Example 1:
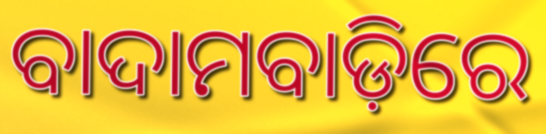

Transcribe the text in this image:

ବାଦାମବାଡ଼ିରେ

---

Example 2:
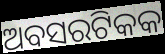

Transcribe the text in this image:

ଅବସରଟିକକ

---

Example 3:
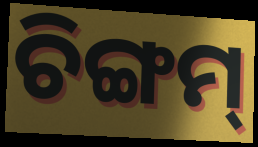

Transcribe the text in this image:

ଚିଙ୍ଗମ୍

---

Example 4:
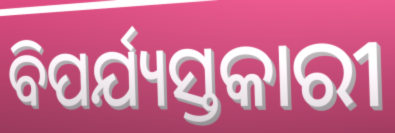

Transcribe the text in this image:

ବିପର୍ଯ୍ୟସ୍ତକାରୀ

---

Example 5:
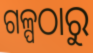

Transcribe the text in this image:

ଗଳ୍ପଠାରୁ